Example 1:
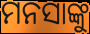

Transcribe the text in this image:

ମନସାଙ୍କୁ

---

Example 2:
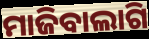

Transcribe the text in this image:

ମାଜିବାଲାଗି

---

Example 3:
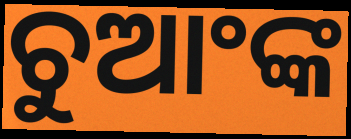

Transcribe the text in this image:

ଚୁଆଂଙ୍କ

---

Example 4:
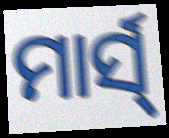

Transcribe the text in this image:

ମାର୍ସ୍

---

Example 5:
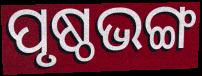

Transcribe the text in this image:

ପୃଷ୍ଠଭଙ୍ଗ